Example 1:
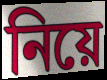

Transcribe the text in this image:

নিয়ে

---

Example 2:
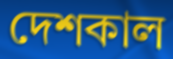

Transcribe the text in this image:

দেশকাল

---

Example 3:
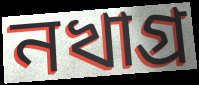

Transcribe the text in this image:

নখাগ্র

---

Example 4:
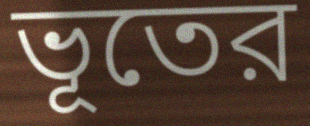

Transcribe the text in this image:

ভূতের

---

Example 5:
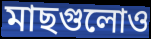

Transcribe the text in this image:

মাছগুলোও